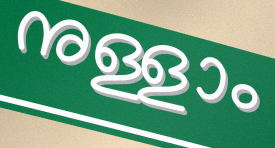
നുള്ളാം